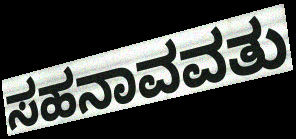
ಸಹನಾವವತು